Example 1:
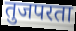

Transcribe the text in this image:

तुजपरता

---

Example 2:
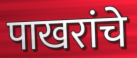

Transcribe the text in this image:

पाखरांचे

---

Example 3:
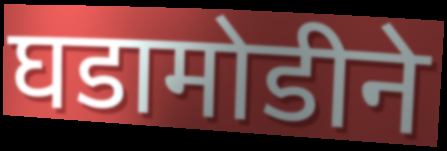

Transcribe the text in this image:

घडामोडीने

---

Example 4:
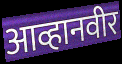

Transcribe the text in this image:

आव्हानवीर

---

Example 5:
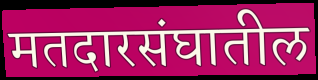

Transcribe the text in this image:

मतदारसंघातील